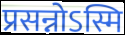
प्रसन्नोऽस्मि